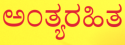
ಅಂತ್ಯರಹಿತ